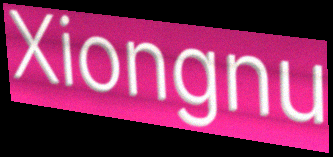
Xiongnu